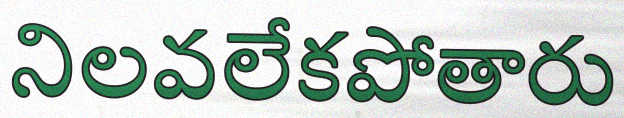
నిలవలేకపోతారు